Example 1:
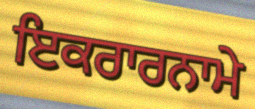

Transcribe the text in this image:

ਇਕਰਾਰਨਾਮੇ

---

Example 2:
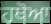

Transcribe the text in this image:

ਹਥੋਆ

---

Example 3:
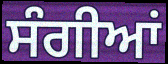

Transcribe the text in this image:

ਸੰਗੀਆਂ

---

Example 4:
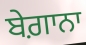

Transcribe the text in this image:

ਬੇਗ਼ਾਨਾ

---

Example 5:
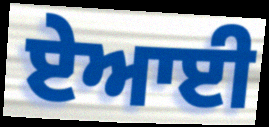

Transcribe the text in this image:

ਏਆਈ